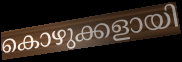
കൊഴുക്കളായി